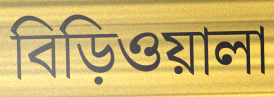
বিড়িওয়ালা